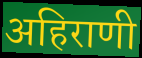
अहिराणी